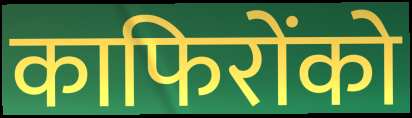
काफिरोंको